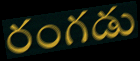
రంగడు